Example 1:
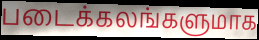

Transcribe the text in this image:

படைக்கலங்களுமாக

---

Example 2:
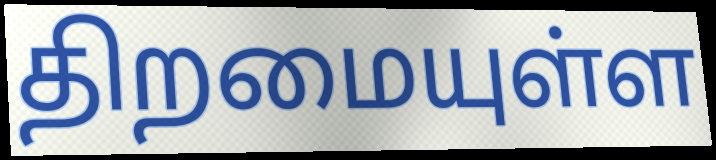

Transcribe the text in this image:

திறமையுள்ள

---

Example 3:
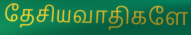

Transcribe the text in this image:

தேசியவாதிகளே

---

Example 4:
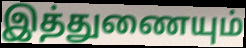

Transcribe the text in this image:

இத்துணையும்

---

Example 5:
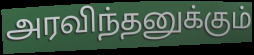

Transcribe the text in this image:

அரவிந்தனுக்கும்